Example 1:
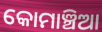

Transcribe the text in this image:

କୋମାଞ୍ଚିଆ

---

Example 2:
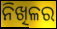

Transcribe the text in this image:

ନିଖିଳର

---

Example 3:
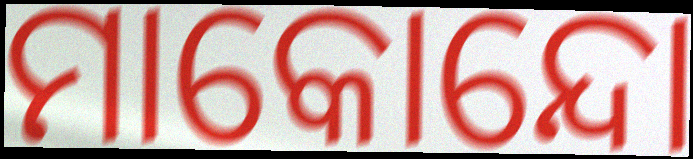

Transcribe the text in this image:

ମାକୋନ୍ଦୋ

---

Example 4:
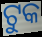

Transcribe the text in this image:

ଟୁକ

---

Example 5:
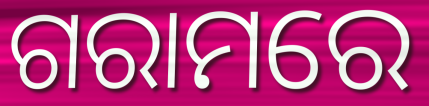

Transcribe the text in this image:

ଗରାମରେ